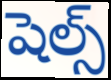
షెల్స్